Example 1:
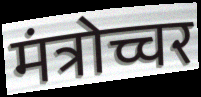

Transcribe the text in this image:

मंत्रोच्चर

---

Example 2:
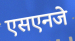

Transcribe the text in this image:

एसएनजे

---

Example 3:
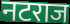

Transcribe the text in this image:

नटराज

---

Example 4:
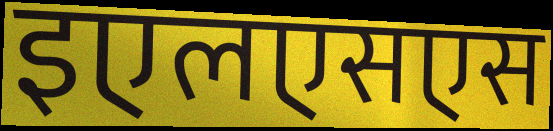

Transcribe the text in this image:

इएलएसएस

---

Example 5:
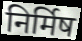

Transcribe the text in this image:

निर्मिष